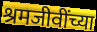
श्रमजीवींच्या